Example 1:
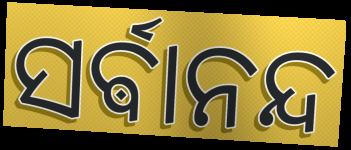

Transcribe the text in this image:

ସର୍ଵାନନ୍ଦ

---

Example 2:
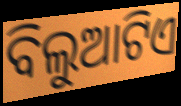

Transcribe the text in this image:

ବିଲୁଆଟିଏ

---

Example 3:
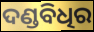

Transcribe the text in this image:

ଦଣ୍ଡବିଧିର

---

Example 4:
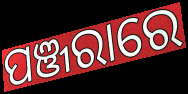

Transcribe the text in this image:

ପଞ୍ଜରାରେ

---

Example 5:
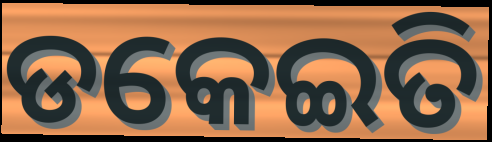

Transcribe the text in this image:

ଡକେଇତି